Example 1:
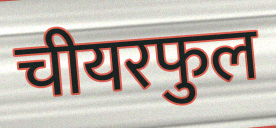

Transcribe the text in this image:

चीयरफुल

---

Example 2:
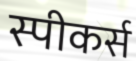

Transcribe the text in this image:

स्पीकर्स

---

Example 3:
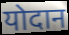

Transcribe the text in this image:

योदान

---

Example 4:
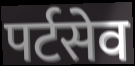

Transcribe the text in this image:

पर्टसेव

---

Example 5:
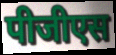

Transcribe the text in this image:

पीजीएस